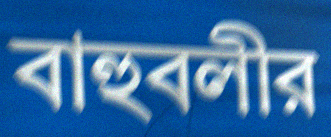
বাহুবলীর